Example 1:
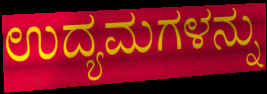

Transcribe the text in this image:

ಉದ್ಯಮಗಳನ್ನು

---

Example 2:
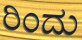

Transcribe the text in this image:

ರಿಂದು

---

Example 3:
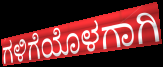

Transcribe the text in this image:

ಗಳಿಗೆಯೊಳಗಾಗಿ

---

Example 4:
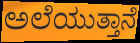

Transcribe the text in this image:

ಅಲೆಯುತ್ತಾನೆ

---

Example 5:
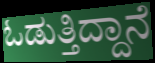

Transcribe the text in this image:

ಓಡುತ್ತಿದ್ದಾನೆ